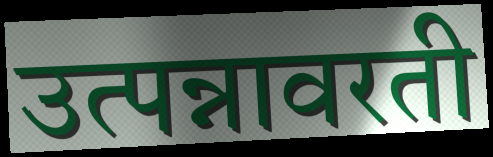
उत्पन्नावरती